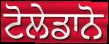
ਟੋਲੇਡਾਨੋ